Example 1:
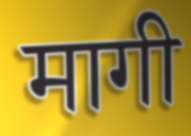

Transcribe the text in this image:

मागी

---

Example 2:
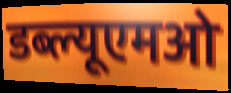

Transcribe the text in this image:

डब्ल्यूएमओ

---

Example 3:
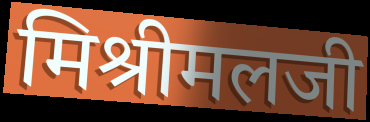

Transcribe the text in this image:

मिश्रीमलजी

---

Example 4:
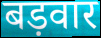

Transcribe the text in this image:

बड़वार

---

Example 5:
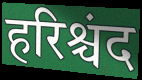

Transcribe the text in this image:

हरिश्चंद